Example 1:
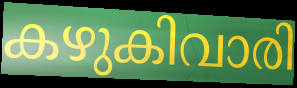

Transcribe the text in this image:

കഴുകിവാരി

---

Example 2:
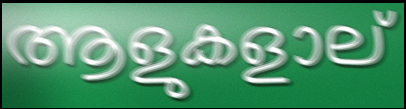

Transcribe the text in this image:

ആളുകളാല്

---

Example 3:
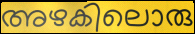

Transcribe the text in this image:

അഴകിലൊരു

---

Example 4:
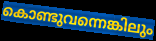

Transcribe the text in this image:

കൊണ്ടുവന്നെങ്കിലും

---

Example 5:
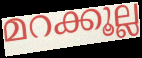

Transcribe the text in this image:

മറക്കൂല്ല